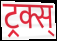
ट्रक्स्